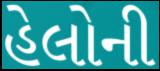
હેલોની